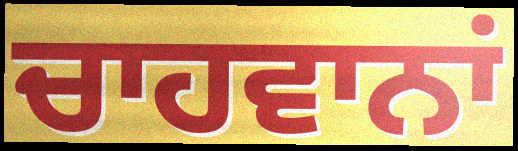
ਚਾਹਵਾਨਾਂ